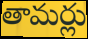
తామర్లు